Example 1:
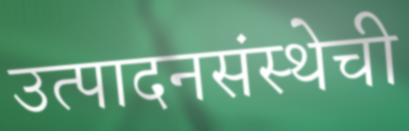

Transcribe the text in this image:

उत्पादनसंस्थेची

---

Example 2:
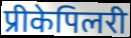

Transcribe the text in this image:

प्रीकेपिलरी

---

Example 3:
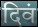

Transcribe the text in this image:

दिवं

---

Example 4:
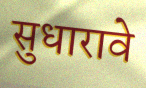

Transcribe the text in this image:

सुधारावे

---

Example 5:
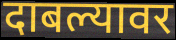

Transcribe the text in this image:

दाबल्यावर